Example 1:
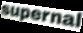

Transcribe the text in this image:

supernal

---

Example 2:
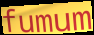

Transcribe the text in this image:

fumum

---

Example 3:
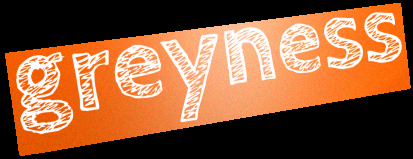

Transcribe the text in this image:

greyness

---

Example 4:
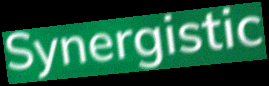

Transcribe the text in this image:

Synergistic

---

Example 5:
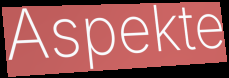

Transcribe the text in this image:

Aspekte